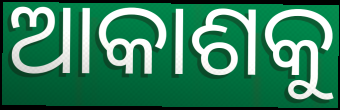
ଆକାଶକୁ